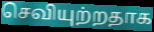
செவியுற்றதாக